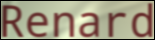
Renard